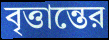
বৃত্তান্তের